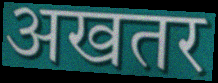
अखतर